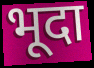
भूदा